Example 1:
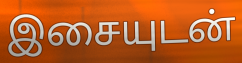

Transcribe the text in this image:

இசையுடன்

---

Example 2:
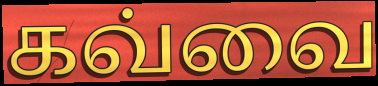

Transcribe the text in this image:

கவ்வை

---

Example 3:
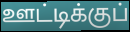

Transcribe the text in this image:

ஊட்டிக்குப்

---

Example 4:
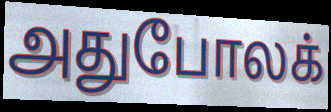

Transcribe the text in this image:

அதுபோலக்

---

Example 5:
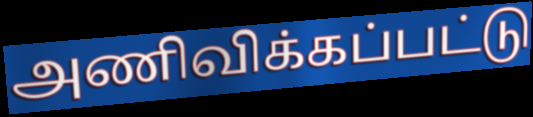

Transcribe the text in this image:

அணிவிக்கப்பட்டு